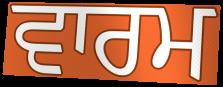
ਵਾਰਮ